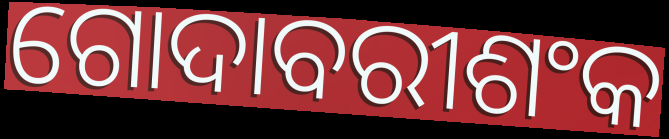
ଗୋଦାବରୀଶଂକ